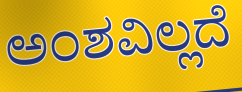
ಅಂಶವಿಲ್ಲದೆ